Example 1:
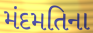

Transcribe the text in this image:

મંદમતિના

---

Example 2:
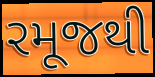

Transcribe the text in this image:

રમૂજથી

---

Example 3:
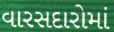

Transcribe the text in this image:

વારસદારોમાં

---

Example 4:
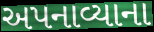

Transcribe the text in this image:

અપનાવ્યાના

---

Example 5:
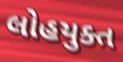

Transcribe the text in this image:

લોહયુક્ત